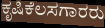
ಕೃಷಿಕೆಲಸಗಾರರು